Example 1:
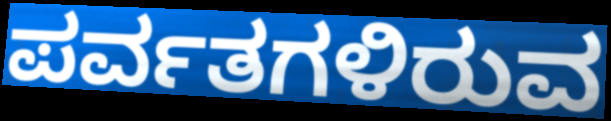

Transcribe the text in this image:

ಪರ್ವತಗಳಿರುವ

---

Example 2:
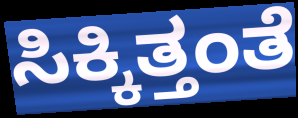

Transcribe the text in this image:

ಸಿಕ್ಕಿತ್ತಂತೆ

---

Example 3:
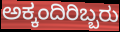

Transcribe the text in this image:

ಅಕ್ಕಂದಿರಿಬ್ಬರು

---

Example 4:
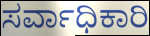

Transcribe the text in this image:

ಸರ್ವಾಧಿಕಾರಿ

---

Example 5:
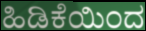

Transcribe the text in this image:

ಹಿಡಿಕೆಯಿಂದ